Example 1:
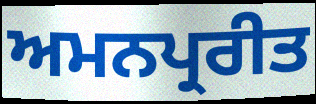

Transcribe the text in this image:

ਅਮਨਪ੍ਰਰੀਤ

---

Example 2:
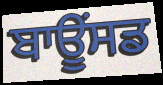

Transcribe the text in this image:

ਬਾਊਂਸਡ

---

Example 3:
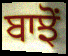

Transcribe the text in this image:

ਬਾਝੋਂ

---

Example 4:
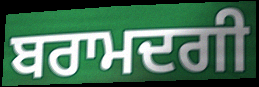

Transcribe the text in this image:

ਬਰਾਮਦਗੀ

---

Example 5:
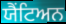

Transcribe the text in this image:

ਯੈਂਟਿਅਨ